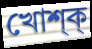
খোশ্ক্